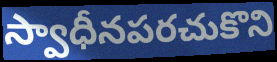
స్వాధీనపరచుకొని